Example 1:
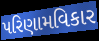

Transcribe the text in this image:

પરિણામવિકાર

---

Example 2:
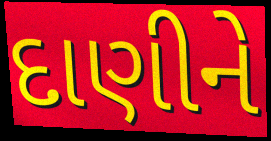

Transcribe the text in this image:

દાણીને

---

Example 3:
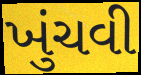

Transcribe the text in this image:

ખુંચવી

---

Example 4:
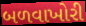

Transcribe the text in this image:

બળવાખોરી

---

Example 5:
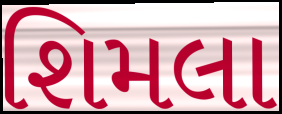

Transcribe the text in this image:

શિમલા